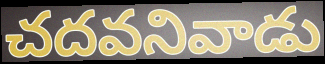
చదవనివాడు